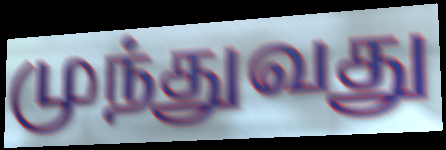
முந்துவது